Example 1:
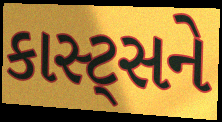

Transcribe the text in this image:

કાસ્ટ્સને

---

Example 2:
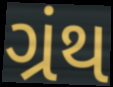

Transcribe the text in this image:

ગ્રંથ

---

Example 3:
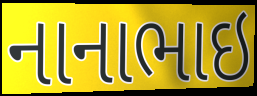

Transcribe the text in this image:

નાનાભાઇ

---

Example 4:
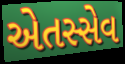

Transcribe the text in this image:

એતસ્સેવ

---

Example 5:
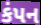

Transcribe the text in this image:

કંપન